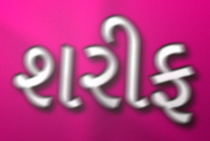
શરીફ